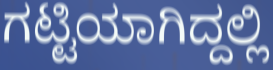
ಗಟ್ಟಿಯಾಗಿದ್ದಲ್ಲಿ